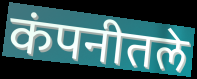
कंपनीतले